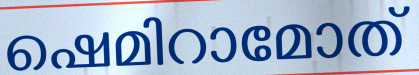
ഷെമിറാമോത്